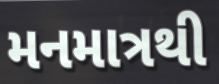
મનમાત્રથી